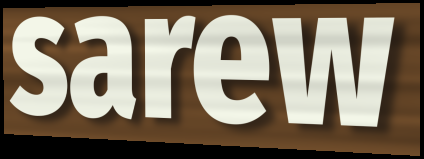
sarew